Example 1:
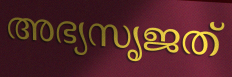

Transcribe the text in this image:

അഭ്യസൃജത്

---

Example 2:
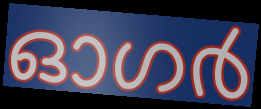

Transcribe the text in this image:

ഓഗർ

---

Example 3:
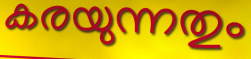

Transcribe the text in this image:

കരയുന്നതും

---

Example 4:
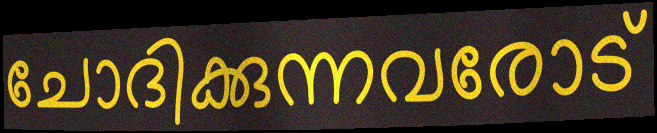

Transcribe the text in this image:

ചോദിക്കുന്നവരോട്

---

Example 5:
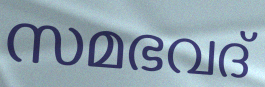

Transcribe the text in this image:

സമഭവദ്